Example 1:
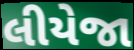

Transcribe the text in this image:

લીયેજા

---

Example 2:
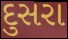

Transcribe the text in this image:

દુસરા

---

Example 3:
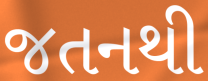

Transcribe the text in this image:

જતનથી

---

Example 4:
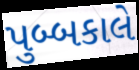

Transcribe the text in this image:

પુબ્બકાલે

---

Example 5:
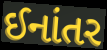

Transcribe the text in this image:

ઈનાંતર